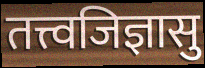
तत्त्वजिज्ञासु